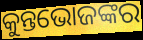
କୁନ୍ତଭୋଜଙ୍କର